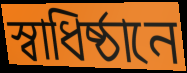
স্বাধিষ্ঠানে